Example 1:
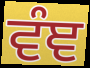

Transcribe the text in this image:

ਵੰਞ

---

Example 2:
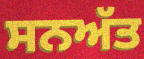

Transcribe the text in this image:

ਸਨਅੱਤ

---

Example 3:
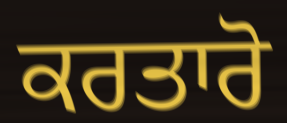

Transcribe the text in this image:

ਕਰਤਾਰੋ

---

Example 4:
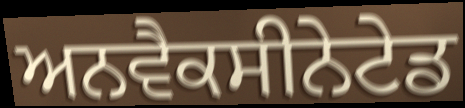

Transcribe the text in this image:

ਅਨਵੈਕਸੀਨੇਟੇਡ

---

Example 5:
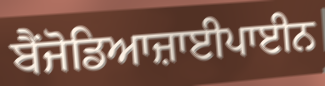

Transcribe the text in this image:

ਬੈਂਜੋਡਿਆਜ਼ਾਈਪਾਈਨ